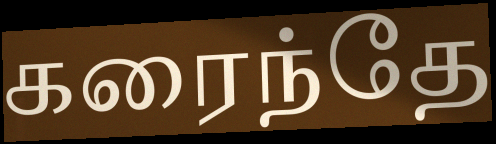
கரைந்தே